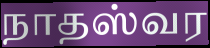
நாதஸ்வர